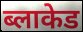
ब्लाकेड